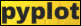
pyplot